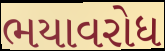
ભયાવરોધ